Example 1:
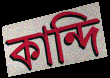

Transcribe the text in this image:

কান্দি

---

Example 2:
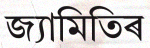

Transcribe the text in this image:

জ্যামিতিৰ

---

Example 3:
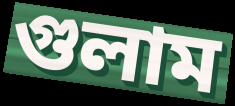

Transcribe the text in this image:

গুলাম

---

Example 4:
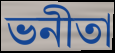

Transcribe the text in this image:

ভনীতা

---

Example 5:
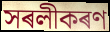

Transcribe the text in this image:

সৰলীকৰণ